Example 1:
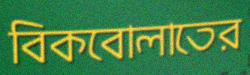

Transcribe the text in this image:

বিকবোলাতের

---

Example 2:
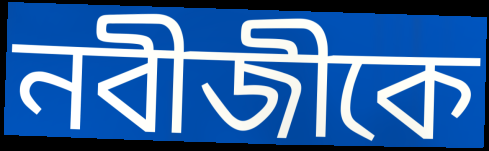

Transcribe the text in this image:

নবীজীকে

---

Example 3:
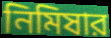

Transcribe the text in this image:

নিমিষার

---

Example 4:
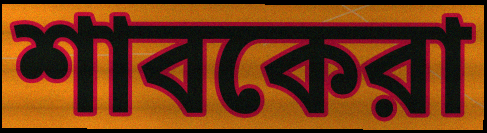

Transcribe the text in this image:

শাবকেরা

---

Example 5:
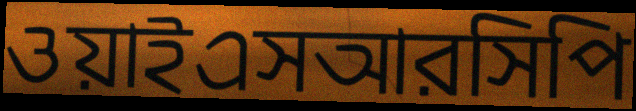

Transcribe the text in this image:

ওয়াইএসআরসিপি